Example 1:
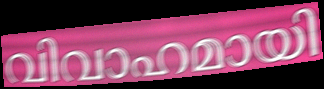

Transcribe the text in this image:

വിവാഹമായി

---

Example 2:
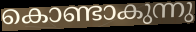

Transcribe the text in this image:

കൊണ്ടാകുന്നു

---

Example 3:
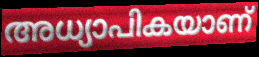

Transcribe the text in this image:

അധ്യാപികയാണ്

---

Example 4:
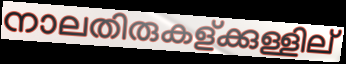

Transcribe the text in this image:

നാലതിരുകള്ക്കുള്ളില്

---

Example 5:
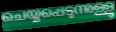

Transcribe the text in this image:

ചെയ്യപ്പെടുന്നുള്ളൂ